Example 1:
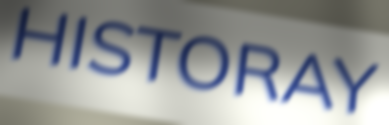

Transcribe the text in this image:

HISTORAY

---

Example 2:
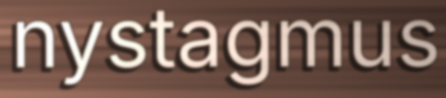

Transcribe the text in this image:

nystagmus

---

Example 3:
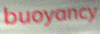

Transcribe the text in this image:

buoyancy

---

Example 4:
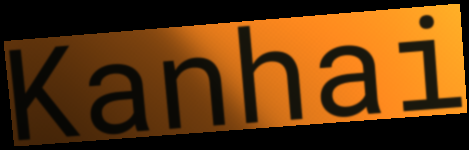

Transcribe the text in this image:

Kanhai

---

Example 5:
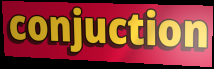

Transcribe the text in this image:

conjuction